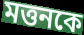
মত্তনকে